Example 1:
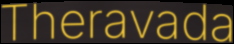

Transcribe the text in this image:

Theravada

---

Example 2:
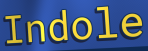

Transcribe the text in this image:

Indole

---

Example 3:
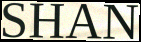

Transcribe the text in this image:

SHAN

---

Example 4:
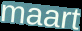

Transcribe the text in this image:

maart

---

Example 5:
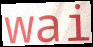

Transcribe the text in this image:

wai